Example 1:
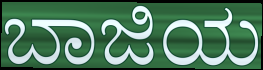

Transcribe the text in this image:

ಬಾಜಿಯ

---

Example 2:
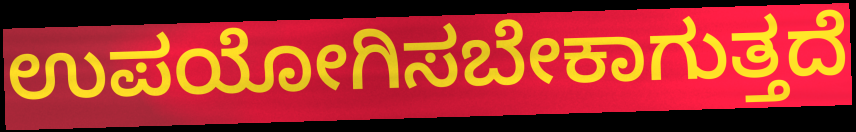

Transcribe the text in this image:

ಉಪಯೋಗಿಸಬೇಕಾಗುತ್ತದೆ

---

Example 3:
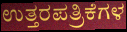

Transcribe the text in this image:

ಉತ್ತರಪತ್ರಿಕೆಗಳ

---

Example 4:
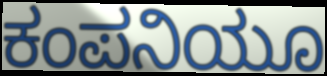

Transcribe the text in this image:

ಕಂಪನಿಯೂ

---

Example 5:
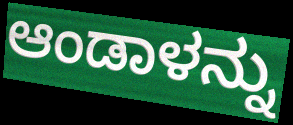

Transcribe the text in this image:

ಆಂಡಾಳನ್ನು